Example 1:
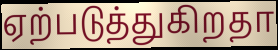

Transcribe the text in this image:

ஏற்படுத்துகிறதா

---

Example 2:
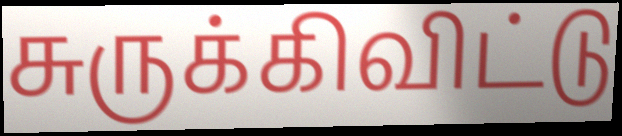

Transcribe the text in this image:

சுருக்கிவிட்டு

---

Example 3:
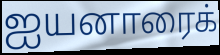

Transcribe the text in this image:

ஐயனாரைக்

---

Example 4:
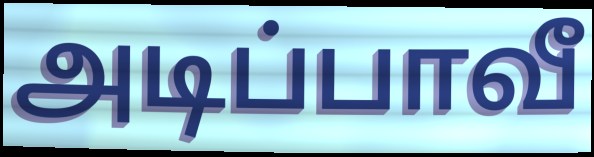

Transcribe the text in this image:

அடிப்பாவீ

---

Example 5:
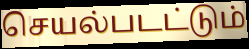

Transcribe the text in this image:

செயல்படட்டும்